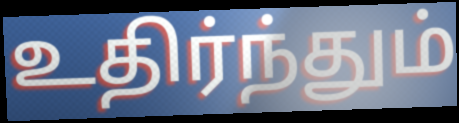
உதிர்ந்தும்